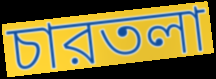
চারতলা